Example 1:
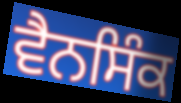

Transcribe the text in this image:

ਵੈਨਸਿੰਕ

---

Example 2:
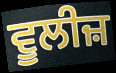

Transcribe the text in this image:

ਵੂਲੀਜ਼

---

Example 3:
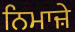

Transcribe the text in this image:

ਨਿਮਾਜ਼ੇ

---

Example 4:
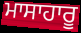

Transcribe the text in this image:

ਮਾਸਾਹਾਰੂ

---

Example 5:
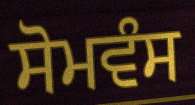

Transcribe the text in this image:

ਸੋਮਵੰਸ